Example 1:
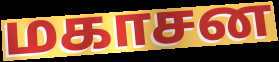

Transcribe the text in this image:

மகாசன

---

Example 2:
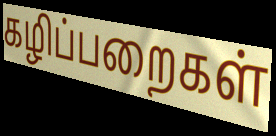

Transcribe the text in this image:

கழிப்பறைகள்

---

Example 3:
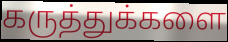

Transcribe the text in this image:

கருத்துக்களை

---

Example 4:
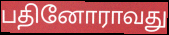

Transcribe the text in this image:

பதினோராவது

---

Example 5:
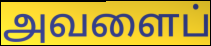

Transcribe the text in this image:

அவளைப்